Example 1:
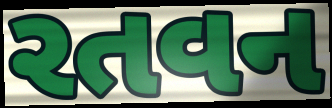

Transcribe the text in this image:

રતવન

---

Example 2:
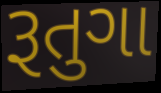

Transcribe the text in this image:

રૂતુગા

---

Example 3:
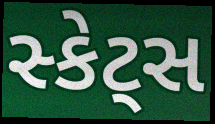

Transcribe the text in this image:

સ્કેટ્સ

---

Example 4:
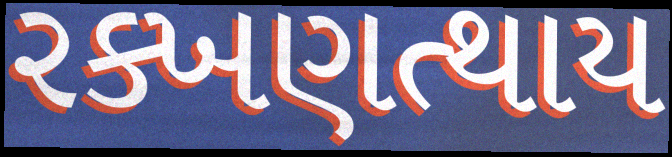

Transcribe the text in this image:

રક્ખણત્થાય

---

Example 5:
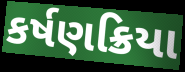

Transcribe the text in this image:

કર્ષણક્રિયા